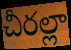
చీరల్లా